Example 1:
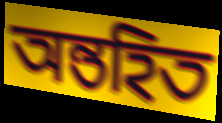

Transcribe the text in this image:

অন্তহিত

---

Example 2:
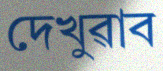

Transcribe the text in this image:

দেখুৱাব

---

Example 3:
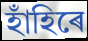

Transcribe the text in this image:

হাঁহিৰে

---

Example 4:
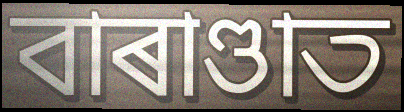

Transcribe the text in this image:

বাৰাণ্ডাত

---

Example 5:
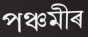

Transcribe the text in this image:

পঞ্চমীৰ